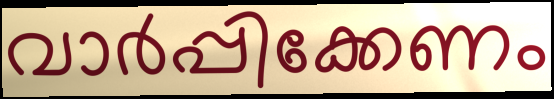
വാർപ്പിക്കേണം